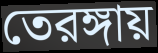
তেরঙ্গায়